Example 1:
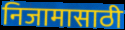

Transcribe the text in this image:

निजामासाठी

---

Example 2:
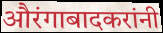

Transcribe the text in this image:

औरंगाबादकरांनी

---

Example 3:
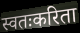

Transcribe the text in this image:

स्वतःकरिता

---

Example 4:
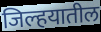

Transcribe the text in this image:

जिल्हयातील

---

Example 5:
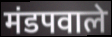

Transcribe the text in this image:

मंडपवाले